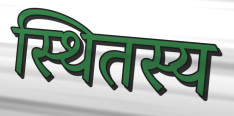
स्थितस्य